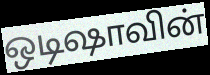
ஒடிஷாவின்